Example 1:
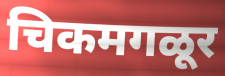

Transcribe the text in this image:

चिकमगळूर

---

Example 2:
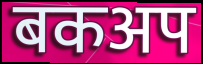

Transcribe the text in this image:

बकअप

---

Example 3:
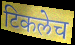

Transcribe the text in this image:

टिकलेच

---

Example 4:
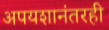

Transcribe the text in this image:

अपयशानंतरही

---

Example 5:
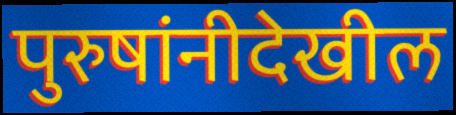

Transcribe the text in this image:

पुरुषांनीदेखील